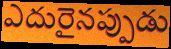
ఎదురైనప్పుడు